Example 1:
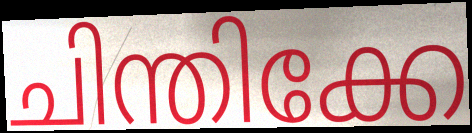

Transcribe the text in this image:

ചിന്തിക്കേ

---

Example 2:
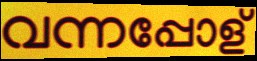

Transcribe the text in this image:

വന്നപ്പോള്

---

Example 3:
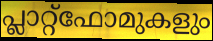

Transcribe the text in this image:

പ്ലാറ്റ്ഫോമുകളും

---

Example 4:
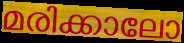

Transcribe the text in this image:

മരിക്കാലോ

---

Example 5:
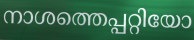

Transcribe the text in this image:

നാശത്തെപ്പറ്റിയോ